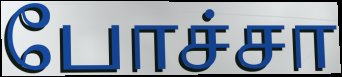
போச்சா